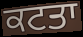
ਕਟਤਾ